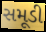
સમૂડી